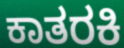
ಕಾತರಕಿ